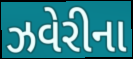
ઝવેરીના